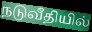
நடுவீதியில்